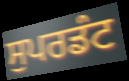
ਸੁਪਰਡੰਟ